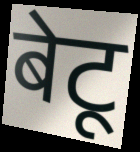
बेटू